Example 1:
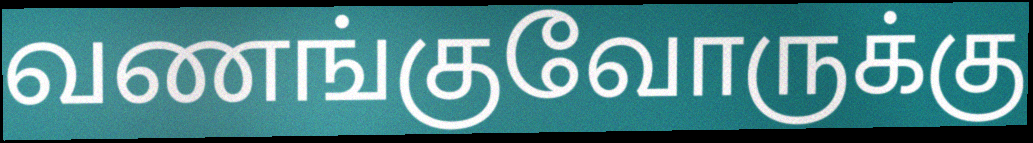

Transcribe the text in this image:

வணங்குவோருக்கு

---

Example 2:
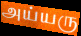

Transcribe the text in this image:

அய்யரு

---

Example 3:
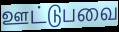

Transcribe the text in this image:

ஊட்டுபவை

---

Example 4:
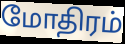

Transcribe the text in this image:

மோதிரம்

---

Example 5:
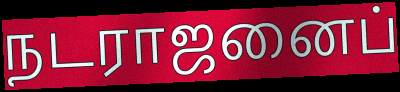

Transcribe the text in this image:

நடராஜனைப்